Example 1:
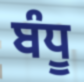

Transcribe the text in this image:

ਬੰਧੂ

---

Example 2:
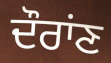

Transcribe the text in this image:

ਦੌਰਾਂਣ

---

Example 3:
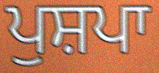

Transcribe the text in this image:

ਪੁਸ਼ਪਾ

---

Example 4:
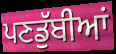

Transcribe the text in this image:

ਪਣਡੁੱਬੀਆਂ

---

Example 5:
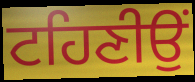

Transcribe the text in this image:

ਟਹਿਣੀਉਂ